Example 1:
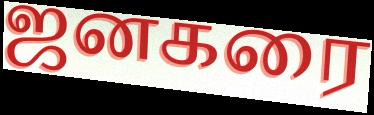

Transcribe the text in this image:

ஜனகரை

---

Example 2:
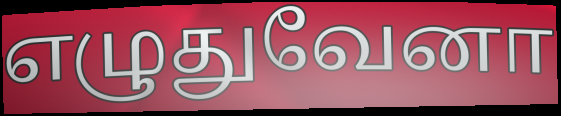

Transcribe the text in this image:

எழுதுவேனா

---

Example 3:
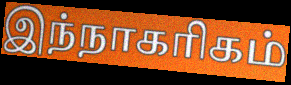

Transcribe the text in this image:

இந்நாகரிகம்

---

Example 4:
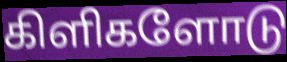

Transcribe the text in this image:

கிளிகளோடு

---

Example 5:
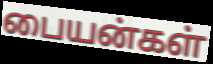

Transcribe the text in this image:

பையன்கள்